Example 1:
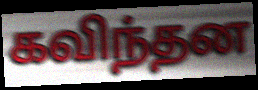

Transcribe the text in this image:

கவிந்தன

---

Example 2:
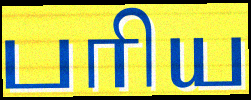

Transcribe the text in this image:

பரிய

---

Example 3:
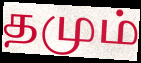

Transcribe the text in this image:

தமும்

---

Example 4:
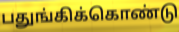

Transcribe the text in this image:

பதுங்கிக்கொண்டு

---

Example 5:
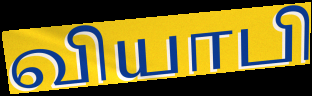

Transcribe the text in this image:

வியாபி